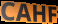
CAHF